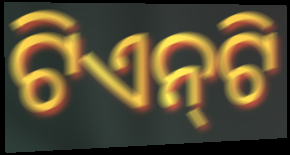
ଟିଏନ୍‌ଟି